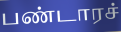
பண்டாரச்